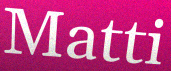
Matti